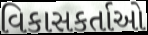
વિકાસકર્તાઓ